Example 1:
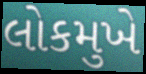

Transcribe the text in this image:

લોકમુખે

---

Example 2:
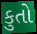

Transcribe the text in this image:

કુતો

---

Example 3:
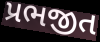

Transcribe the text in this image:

પ્રભજીત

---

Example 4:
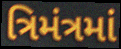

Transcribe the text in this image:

ત્રિમંત્રમાં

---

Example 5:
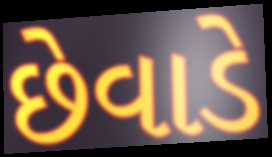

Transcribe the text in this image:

છેવાડે